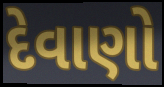
દેવાણો